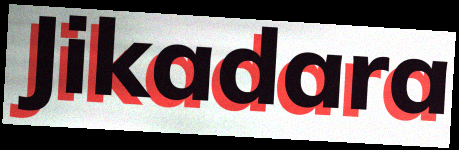
Jikadara